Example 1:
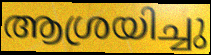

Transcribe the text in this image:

ആശ്രയിച്ചു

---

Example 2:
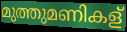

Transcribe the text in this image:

മുത്തുമണികള്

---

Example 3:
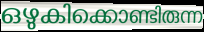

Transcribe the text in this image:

ഒഴുകിക്കൊണ്ടിരുന്ന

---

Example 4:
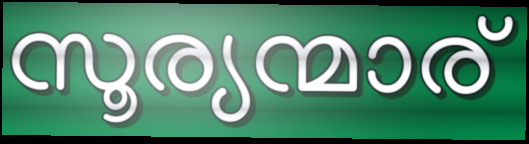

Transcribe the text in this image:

സൂര്യന്മാര്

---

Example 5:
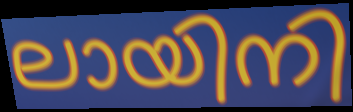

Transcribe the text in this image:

ലായിനി